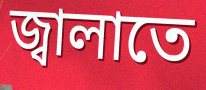
জ্বালাতে